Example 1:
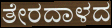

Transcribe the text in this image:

ತೇರದಾಳದ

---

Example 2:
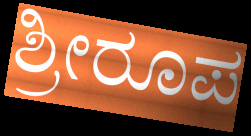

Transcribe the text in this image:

ಶ್ರೀರೂಪ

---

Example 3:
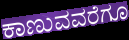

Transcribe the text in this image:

ಕಾಣುವವರೆಗೂ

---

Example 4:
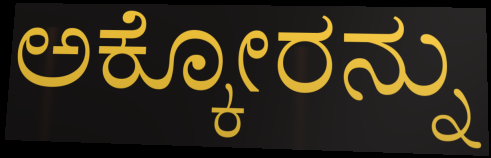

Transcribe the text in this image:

ಅಕ್ಕೋರನ್ನು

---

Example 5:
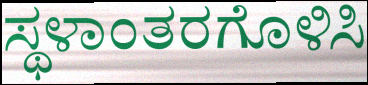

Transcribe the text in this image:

ಸ್ಥಳಾಂತರಗೊಳಿಸಿ